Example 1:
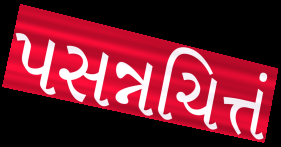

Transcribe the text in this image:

પસન્નચિત્તં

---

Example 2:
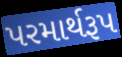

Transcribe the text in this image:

પરમાર્થરૂપ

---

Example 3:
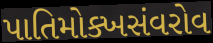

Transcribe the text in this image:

પાતિમોક્ખસંવરોવ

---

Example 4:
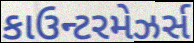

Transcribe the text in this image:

કાઉન્ટરમેઝર્સ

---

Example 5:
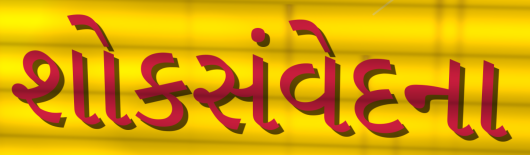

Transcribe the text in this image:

શોકસંવેદના